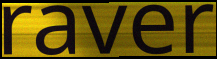
raver